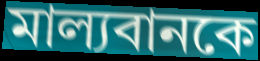
মাল্যবানকে